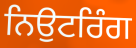
ਨਿਉਟਰਿੰਗ